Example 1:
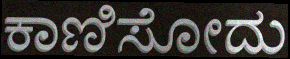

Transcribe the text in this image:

ಕಾಣಿಸೋದು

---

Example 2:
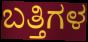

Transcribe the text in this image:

ಬತ್ತಿಗಳ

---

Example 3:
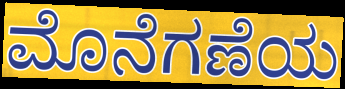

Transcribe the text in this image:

ಮೊನೆಗಣೆಯ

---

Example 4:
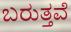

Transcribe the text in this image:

ಬರುತ್ತವೆ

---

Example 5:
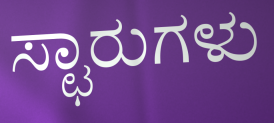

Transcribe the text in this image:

ಸ್ಟಾರುಗಳು